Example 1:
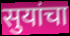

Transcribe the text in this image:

सुयांचा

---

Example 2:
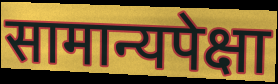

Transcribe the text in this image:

सामान्यपेक्षा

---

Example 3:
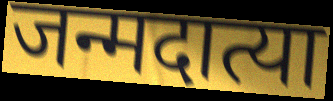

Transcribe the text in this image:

जन्मदात्या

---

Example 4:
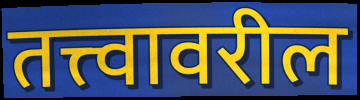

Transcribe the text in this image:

तत्त्वावरील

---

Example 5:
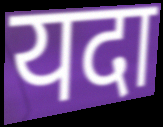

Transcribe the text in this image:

यदा